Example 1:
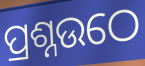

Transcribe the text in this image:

ପ୍ରଶ୍ନଉଠେ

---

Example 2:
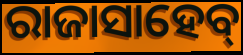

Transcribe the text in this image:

ରାଜାସାହେବ୍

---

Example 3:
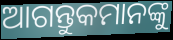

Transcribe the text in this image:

ଆଗନ୍ତୁକମାନଙ୍କୁ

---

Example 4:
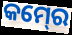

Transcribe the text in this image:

କମ୍‍ରେ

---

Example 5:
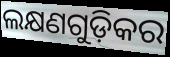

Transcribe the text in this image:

ଲକ୍ଷଣଗୁଡ଼ିକର